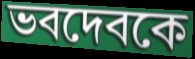
ভবদেবকে